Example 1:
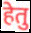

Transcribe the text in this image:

हेतु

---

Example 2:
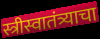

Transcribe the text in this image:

स्त्रीस्वातंत्र्याचा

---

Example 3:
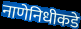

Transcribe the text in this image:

नाणेनिधीकडे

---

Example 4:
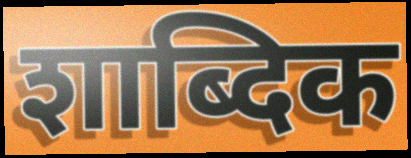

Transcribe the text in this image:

शाब्दिक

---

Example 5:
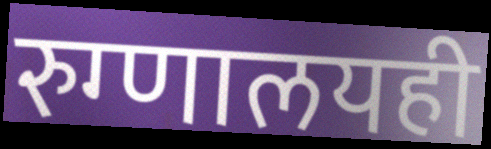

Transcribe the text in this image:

रुग्णालयही